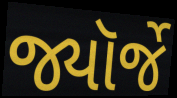
જ્યૉર્જે